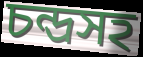
চন্দ্রসহ